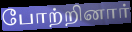
போற்றினார்